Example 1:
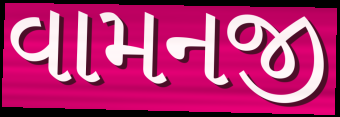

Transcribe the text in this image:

વામનજી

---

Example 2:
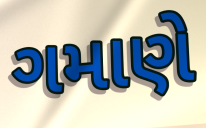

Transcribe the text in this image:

ગમાણે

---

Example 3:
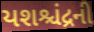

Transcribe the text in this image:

યશશ્ચંદ્રની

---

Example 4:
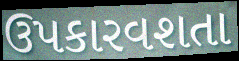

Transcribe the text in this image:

ઉપકારવશતા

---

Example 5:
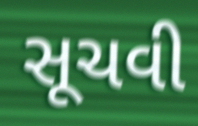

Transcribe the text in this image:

સૂચવી